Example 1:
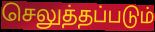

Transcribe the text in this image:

செலுத்தப்படும்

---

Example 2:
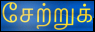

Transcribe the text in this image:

சேற்றுக்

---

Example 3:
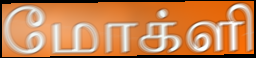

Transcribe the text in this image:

மோக்ளி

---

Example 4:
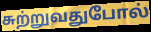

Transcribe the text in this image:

சுற்றுவதுபோல்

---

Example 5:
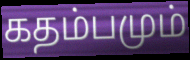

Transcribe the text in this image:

கதம்பமும்